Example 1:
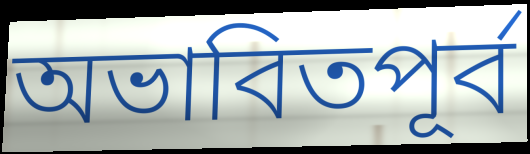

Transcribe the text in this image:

অভাবিতপূর্ব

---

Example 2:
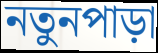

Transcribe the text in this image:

নতুনপাড়া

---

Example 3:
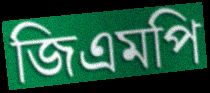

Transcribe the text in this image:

জিএমপি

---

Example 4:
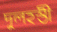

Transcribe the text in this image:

দুলহস্তী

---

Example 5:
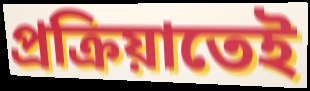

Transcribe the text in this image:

প্রক্রিয়াতেই